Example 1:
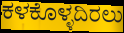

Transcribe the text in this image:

ಕಳಕೊಳ್ಳದಿರಲು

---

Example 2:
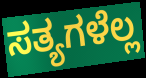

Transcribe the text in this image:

ಸತ್ಯಗಳೆಲ್ಲ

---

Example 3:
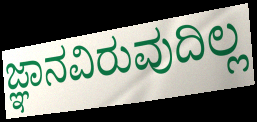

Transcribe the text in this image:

ಜ್ಞಾನವಿರುವುದಿಲ್ಲ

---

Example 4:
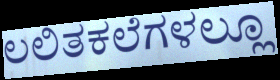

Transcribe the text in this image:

ಲಲಿತಕಲೆಗಳಲ್ಲೂ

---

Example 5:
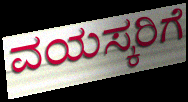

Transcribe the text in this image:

ವಯಸ್ಕರಿಗೆ